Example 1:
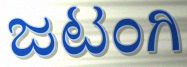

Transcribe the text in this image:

ಜಟಂಗಿ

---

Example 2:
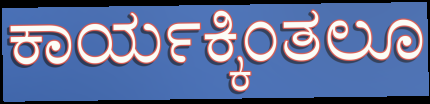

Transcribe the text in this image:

ಕಾರ್ಯಕ್ಕಿಂತಲೂ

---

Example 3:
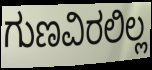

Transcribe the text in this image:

ಗುಣವಿರಲಿಲ್ಲ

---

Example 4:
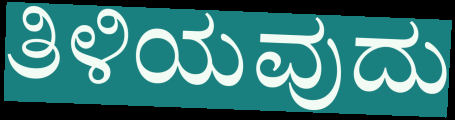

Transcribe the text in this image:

ತಿಳಿಯವುದು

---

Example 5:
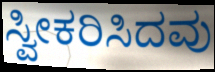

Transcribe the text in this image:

ಸ್ವೀಕರಿಸಿದವು